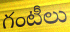
గంటీలు